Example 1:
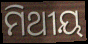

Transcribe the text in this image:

ମିଥୀୟ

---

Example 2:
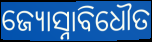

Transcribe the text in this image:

ଜ୍ୟୋସ୍ନାବିଧୌତ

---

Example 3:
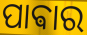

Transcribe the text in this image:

ପାଵାର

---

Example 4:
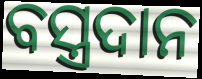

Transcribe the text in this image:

ବସ୍ତ୍ରଦାନ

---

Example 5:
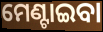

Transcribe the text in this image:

ମେଣ୍ଟାଇବା